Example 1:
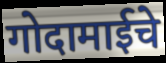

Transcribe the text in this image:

गोदामाईचे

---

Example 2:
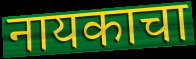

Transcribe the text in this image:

नायकाचा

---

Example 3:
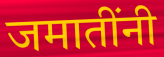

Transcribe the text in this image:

जमातींनी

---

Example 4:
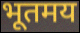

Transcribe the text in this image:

भूतमय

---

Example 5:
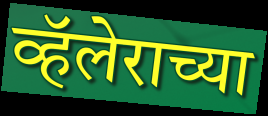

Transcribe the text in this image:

व्हॅलेराच्या